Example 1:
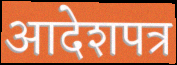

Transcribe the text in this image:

आदेशपत्र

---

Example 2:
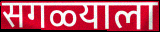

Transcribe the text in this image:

सगळ्याला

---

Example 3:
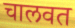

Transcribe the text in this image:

चालवत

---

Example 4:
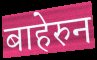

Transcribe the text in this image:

बाहेरुन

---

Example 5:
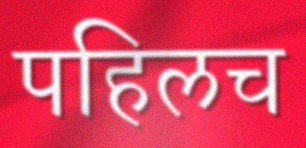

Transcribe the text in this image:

पहिलच